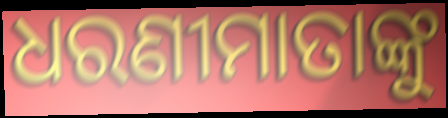
ଧରଣୀମାତାଙ୍କୁ